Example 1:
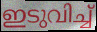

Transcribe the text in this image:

ഇടുവിച്ച്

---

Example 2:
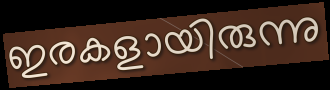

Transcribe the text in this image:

ഇരകളായിരുന്നു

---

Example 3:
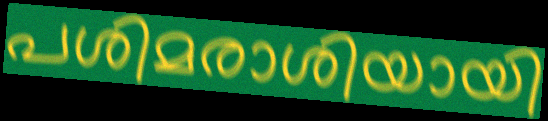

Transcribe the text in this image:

പശിമരാശിയായി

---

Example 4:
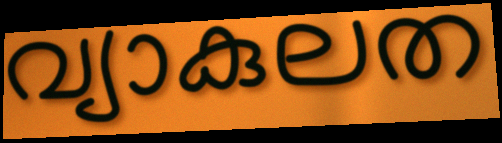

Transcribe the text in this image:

വ്യാകുലത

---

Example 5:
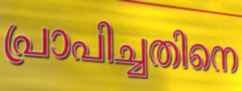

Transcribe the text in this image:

പ്രാപിച്ചതിനെ